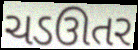
ચડઊતર